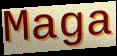
Maga